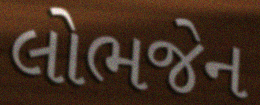
લોભજેન